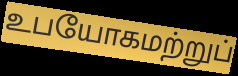
உபயோகமற்றுப்